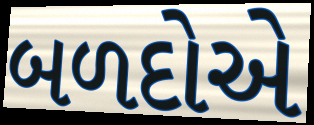
બળદોએ